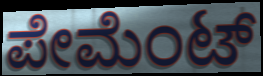
ಪೇಮೆಂಟ್